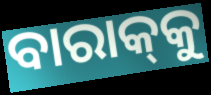
ବାରାକ୍‌କୁ